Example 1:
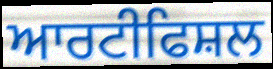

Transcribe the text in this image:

ਆਰਟੀਫਿਸ਼ਲ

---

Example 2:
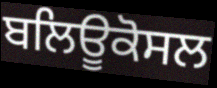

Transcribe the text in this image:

ਬਲਿਊਕੋਸਲ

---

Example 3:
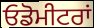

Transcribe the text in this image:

ਓਡੋਮੀਟਰਾਂ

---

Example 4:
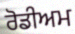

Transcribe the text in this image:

ਰੋਡੀਅਮ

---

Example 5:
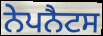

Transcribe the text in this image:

ਨੇਪਨੈਟਸ